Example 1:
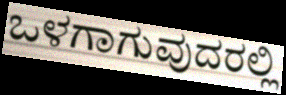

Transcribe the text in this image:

ಒಳಗಾಗುವುದರಲ್ಲಿ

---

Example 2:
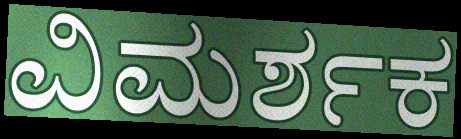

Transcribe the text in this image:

ವಿಮರ್ಶಕ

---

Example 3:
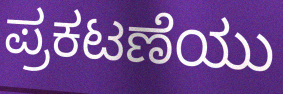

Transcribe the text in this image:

ಪ್ರಕಟಣೆಯು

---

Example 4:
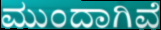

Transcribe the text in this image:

ಮುಂದಾಗಿವೆ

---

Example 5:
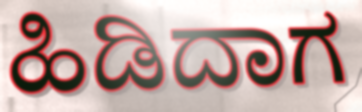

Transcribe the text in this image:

ಹಿಡಿದಾಗ